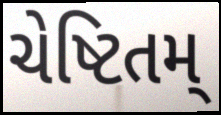
ચેષ્ટિતમ્